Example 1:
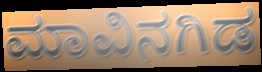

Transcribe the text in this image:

ಮಾವಿನಗಿಡ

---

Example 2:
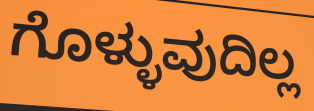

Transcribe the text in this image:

ಗೊಳ್ಳುವುದಿಲ್ಲ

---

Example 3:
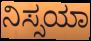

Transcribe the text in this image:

ನಿಸ್ಸಯಾ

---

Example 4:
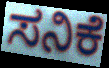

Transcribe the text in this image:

ಸನಿಕೆ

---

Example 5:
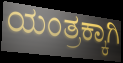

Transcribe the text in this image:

ಯಂತ್ರಕ್ಕಾಗಿ